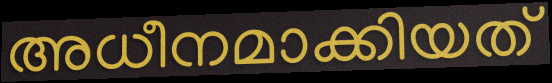
അധീനമാക്കിയത്